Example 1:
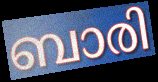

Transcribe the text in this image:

ബാരി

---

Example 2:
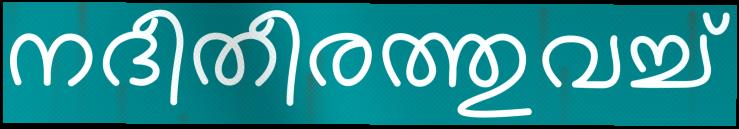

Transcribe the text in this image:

നദീതീരത്തുവച്ച്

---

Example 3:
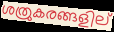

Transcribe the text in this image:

ശത്രുകരങ്ങളില്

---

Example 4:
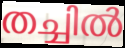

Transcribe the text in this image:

തച്ചിൽ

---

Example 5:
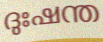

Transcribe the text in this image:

ദുഃഷന്ത